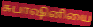
சுபாஷினியை